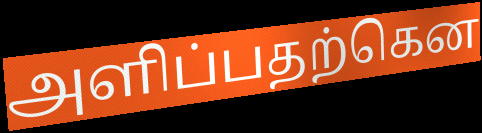
அளிப்பதற்கென